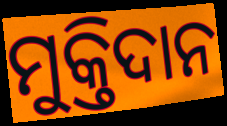
ମୁକ୍ତିଦାନ